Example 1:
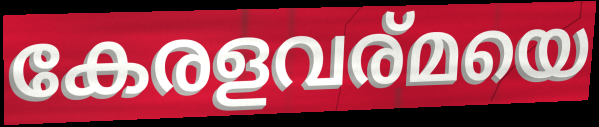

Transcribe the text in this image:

കേരളവര്മയെ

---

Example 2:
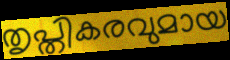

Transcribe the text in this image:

തൃപ്തികരവുമായ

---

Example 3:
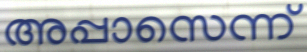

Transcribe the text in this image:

അപ്പാസെന്ന്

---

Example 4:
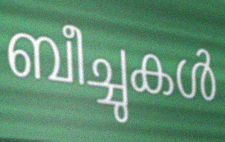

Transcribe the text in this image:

ബീച്ചുകൾ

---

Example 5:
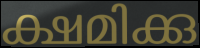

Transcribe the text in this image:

ക്ഷമിക്കു